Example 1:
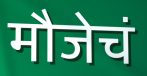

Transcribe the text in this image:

मौजेचं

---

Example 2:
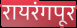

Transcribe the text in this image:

रायरंगपूर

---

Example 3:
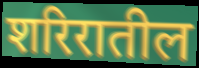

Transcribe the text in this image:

शरिरातील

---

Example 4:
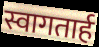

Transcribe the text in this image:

स्वागतार्ह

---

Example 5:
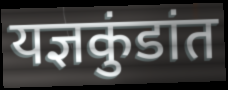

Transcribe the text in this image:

यज्ञकुंडांत